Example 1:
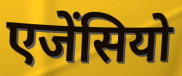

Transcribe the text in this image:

एजेंसियो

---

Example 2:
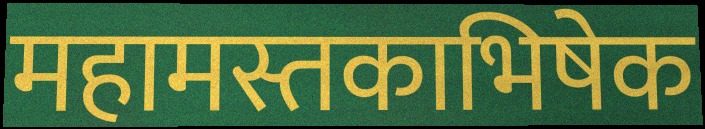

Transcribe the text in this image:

महामस्तकाभिषेक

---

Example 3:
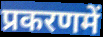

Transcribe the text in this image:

प्रकरणमें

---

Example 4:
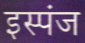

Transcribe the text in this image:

इस्पंज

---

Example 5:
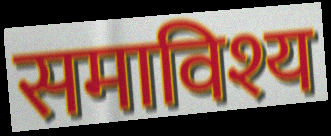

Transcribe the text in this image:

समाविश्य